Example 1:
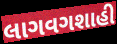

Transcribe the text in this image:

લાગવગશાહી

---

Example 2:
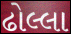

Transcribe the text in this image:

ઢોલ્લા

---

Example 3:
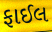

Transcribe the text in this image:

ફાઈલ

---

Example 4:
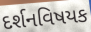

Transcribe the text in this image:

દર્શનવિષયક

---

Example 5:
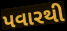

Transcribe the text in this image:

પવારથી